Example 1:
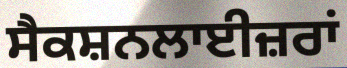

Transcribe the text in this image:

ਸੈਕਸ਼ਨਲਾਈਜ਼ਰਾਂ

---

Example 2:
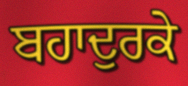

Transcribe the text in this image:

ਬਹਾਦੁਰਕੇ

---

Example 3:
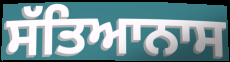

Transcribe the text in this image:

ਸੱਤਿਆਨਾਸ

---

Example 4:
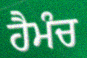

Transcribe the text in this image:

ਹੈਮੰਚ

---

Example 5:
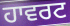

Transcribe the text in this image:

ਹਾਵਰਟ